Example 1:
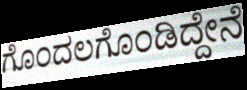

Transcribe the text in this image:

ಗೊಂದಲಗೊಂಡಿದ್ದೇನೆ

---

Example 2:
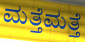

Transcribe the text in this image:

ಮತ್ತೆಮತ್ತೆ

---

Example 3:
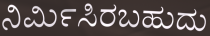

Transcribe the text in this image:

ನಿರ್ಮಿಸಿರಬಹುದು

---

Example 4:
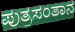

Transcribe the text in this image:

ಪುತ್ರಸಂತಾನ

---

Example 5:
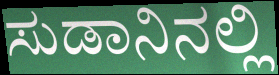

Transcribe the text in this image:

ಸುಡಾನಿನಲ್ಲಿ